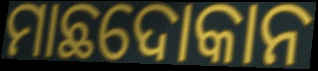
ମାଛଦୋକାନ